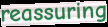
reassuring